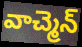
వాచ్మెన్